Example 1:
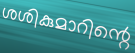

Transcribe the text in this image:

ശശികുമാറിന്റെ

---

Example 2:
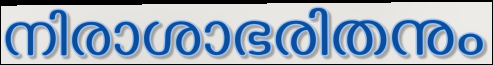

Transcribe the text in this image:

നിരാശാഭരിതനും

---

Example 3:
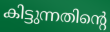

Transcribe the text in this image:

കിട്ടുന്നതിന്റെ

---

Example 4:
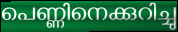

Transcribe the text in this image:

പെണ്ണിനെക്കുറിച്ചു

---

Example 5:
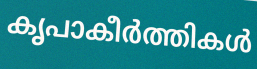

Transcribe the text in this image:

കൃപാകീർത്തികൾ